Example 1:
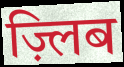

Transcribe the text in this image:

ज़्लिब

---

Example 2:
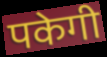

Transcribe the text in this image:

पकेगी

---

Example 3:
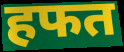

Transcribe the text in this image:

हफत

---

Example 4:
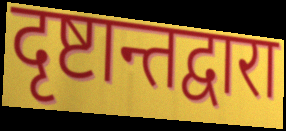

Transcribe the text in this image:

दृष्टान्तद्वारा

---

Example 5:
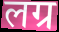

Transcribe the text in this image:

लग्र